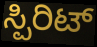
ಸ್ಪಿರಿಟ್